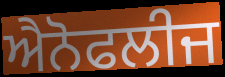
ਐਨੋਫਲੀਜ